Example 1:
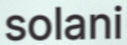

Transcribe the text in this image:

solani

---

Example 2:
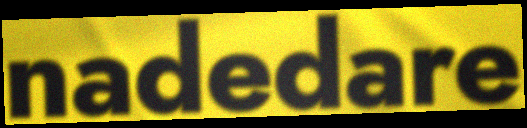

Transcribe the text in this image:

nadedare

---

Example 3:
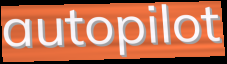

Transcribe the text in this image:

autopilot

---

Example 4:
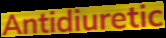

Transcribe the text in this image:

Antidiuretic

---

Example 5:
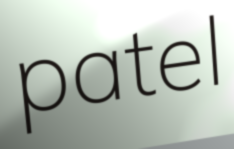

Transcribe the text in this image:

patel